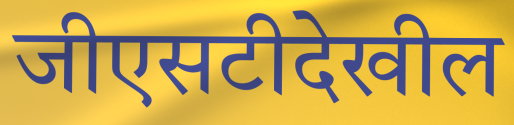
जीएसटीदेखील